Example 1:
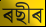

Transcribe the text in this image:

ৰছীৰ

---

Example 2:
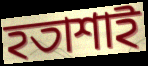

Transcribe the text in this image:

হতাশাই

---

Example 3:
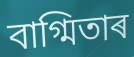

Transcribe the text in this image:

বাগ্মিতাৰ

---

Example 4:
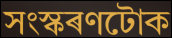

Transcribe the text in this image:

সংস্কৰণটোক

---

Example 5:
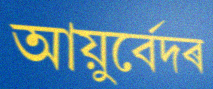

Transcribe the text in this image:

আয়ুৰ্বেদৰ